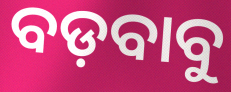
ବଡ଼ବାବୁ